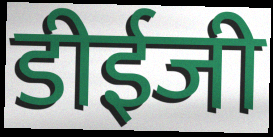
डीईजी